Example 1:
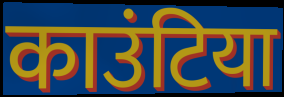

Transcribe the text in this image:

काउंटिया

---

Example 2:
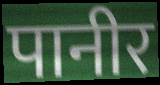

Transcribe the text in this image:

पानीर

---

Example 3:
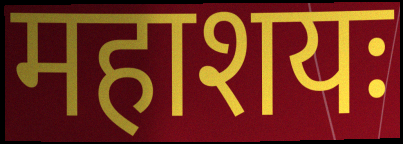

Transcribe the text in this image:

महाशयः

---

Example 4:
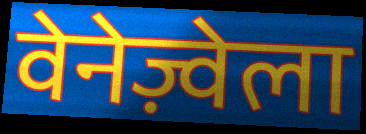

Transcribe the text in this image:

वेनेज़्वेला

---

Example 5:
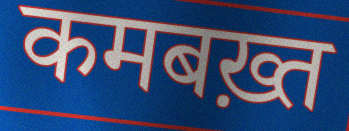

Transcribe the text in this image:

कमबख़्त